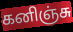
கனிஞ்சு